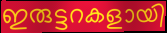
ഇരുട്ടറകളായി